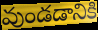
వుండడానికి